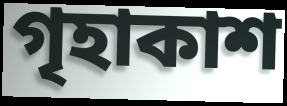
গৃহাকাশ